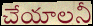
చేయాలనీ